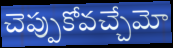
చెప్పుకోవచ్చేమో